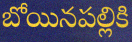
బోయినపల్లికి